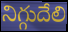
నిగ్గుదేలి